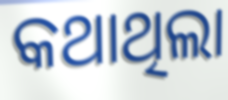
କଥାଥିଲା